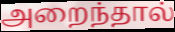
அறைந்தால்